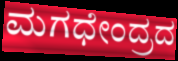
ಮಗಧೇಂದ್ರದ